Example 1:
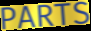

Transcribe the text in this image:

PARTS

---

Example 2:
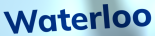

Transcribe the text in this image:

Waterloo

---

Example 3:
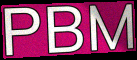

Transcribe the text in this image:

PBM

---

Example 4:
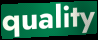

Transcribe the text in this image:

quality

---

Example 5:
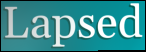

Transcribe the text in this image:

Lapsed